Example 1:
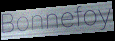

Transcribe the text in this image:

Bonnefoy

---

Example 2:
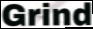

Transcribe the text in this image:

Grind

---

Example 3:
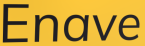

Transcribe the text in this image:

Enave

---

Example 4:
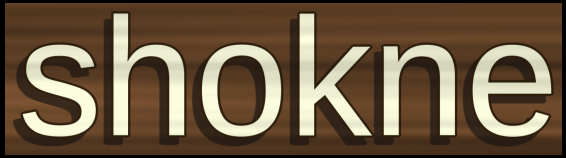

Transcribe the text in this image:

shokne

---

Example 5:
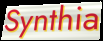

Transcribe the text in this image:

Synthia